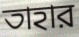
তাহার